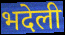
भदेली